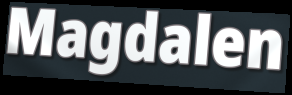
Magdalen